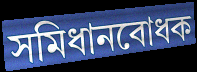
সমিধানবোধক